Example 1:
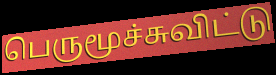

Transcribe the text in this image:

பெருமூச்சுவிட்டு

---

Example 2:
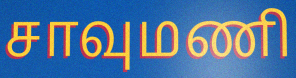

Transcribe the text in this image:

சாவுமணி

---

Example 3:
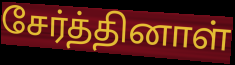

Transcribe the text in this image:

சேர்த்தினாள்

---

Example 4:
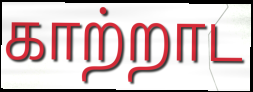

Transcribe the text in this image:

காற்றாட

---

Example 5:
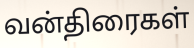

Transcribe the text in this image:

வன்திரைகள்